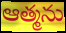
ఆత్మను